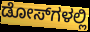
ಡೋಸ್‌ಗಳಲ್ಲಿ